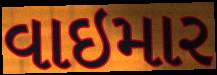
વાઇમાર